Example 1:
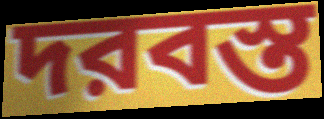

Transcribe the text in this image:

দরবস্ত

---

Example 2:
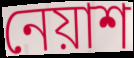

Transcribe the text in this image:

নেয়াশ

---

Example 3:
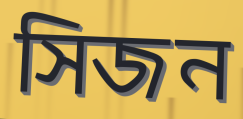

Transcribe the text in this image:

সিজন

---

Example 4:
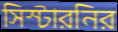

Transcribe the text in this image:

সিস্টারনির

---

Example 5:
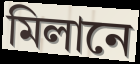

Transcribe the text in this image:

মিলানে